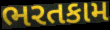
ભરતકામ